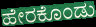
ಹೇರಕೊಂಡು